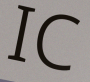
IC